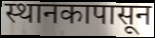
स्थानकापासून